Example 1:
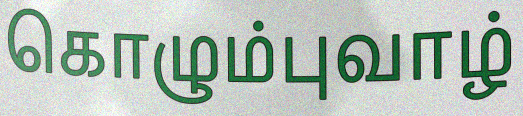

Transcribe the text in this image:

கொழும்புவாழ்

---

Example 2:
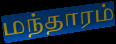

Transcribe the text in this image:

மந்தாரம்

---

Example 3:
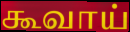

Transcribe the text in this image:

கூவாய்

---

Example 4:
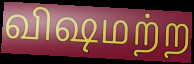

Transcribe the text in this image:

விஷமற்ற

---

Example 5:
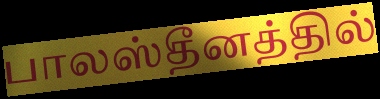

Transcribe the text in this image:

பாலஸ்தீனத்தில்